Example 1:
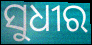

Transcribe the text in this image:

ସୁଧୀର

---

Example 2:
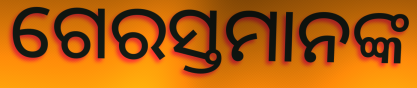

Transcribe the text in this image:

ଗେରସ୍ତମାନଙ୍କ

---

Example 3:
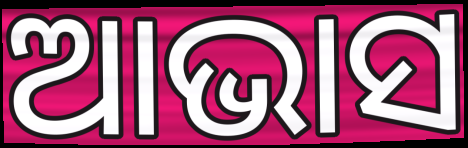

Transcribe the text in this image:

ଆଭାସ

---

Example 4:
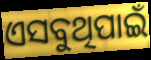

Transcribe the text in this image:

ଏସବୁଥିପାଇଁ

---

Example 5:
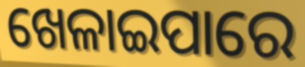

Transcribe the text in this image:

ଖେଳାଇପାରେ